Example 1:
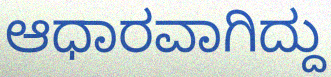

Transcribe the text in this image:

ಆಧಾರವಾಗಿದ್ದು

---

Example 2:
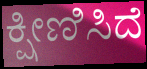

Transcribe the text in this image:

ಕ್ಷೀಣಿಸಿದೆ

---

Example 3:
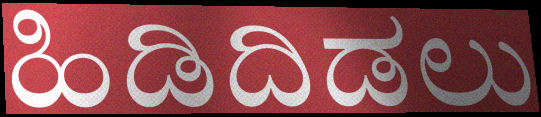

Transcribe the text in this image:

ಹಿಡಿದಿಡಲು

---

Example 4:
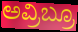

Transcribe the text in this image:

ಅವ್ರಿಬ್ರೂ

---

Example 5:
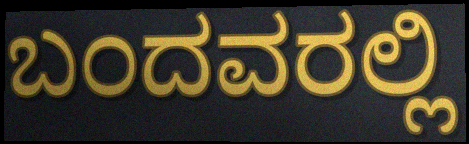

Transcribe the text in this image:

ಬಂದವರಲ್ಲಿ